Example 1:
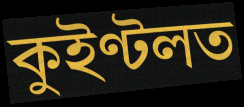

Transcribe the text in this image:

কুইণ্টলত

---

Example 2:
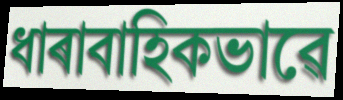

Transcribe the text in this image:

ধাৰাবাহিকভাৱে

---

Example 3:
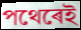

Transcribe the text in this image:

পথেৰেই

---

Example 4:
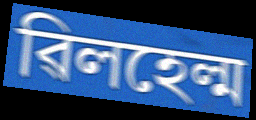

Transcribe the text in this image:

ৱিলহেল্ম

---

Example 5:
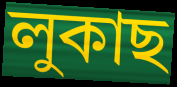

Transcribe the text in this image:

লুকাছ